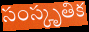
సంస్కృతిక